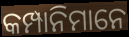
କମ୍ପାନିମାନେ